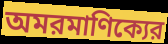
অমরমাণিক্যের